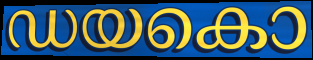
ഡയകൊ